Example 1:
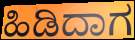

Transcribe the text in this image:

ಹಿಡಿದಾಗ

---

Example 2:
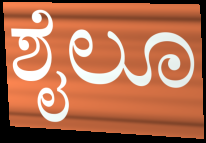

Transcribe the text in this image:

ಶೈಲೂ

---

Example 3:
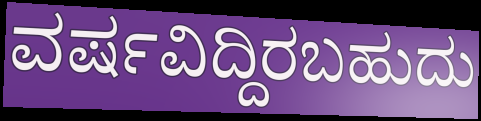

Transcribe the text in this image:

ವರ್ಷವಿದ್ದಿರಬಹುದು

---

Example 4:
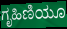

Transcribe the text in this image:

ಗೃಹಿಣಿಯೂ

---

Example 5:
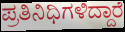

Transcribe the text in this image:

ಪ್ರತಿನಿಧಿಗಳಿದ್ದಾರೆ